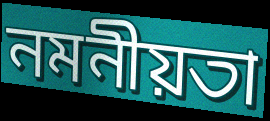
নমনীয়তা